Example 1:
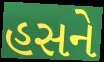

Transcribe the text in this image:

હસને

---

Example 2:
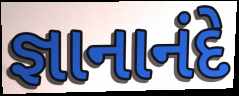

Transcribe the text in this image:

જ્ઞાનાનંદે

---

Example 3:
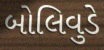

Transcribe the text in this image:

બોલિવુડે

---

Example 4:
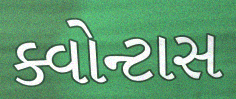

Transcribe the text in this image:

ક્વોન્ટાસ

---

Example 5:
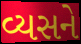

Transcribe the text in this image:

વ્યસને